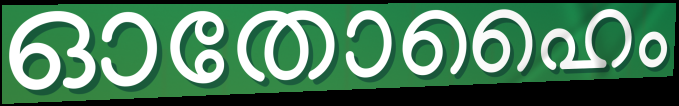
ഓതോഹൈം